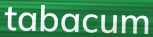
tabacum